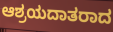
ಆಶ್ರಯದಾತರಾದ